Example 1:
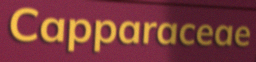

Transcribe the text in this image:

Capparaceae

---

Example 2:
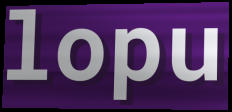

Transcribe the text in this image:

lopu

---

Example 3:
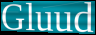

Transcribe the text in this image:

Gluud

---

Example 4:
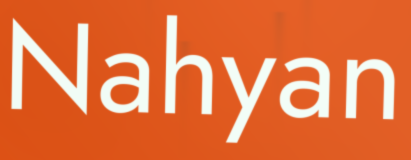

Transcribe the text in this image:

Nahyan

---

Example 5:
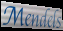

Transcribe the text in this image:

Mendels